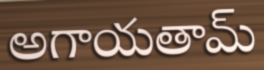
అగాయతామ్